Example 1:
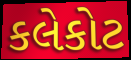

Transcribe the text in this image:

કલેકોટ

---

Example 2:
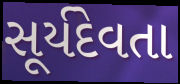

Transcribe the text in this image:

સૂર્યદેવતા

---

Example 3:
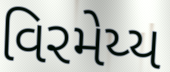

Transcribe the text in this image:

વિરમેય્ય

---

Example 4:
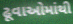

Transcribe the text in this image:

ઢૂવાઓમાંથી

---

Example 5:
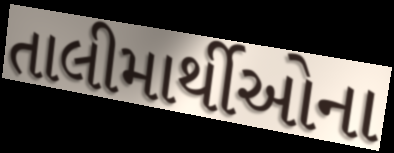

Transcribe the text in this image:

તાલીમાર્થીઓના